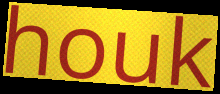
houk